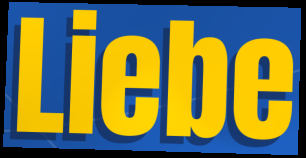
Liebe